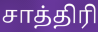
சாத்திரி